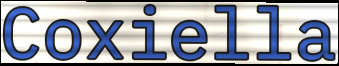
Coxiella